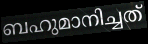
ബഹുമാനിച്ചത്